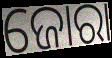
ଜୋରା